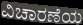
ವಿಚಾರಣೆಯ